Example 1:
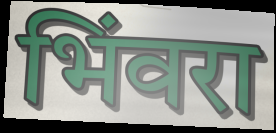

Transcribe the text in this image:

भिंवरा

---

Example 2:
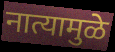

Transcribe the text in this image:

नात्यामुळे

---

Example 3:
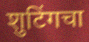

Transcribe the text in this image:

शुटिंगचा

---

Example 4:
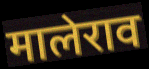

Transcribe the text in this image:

मालेराव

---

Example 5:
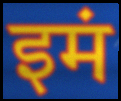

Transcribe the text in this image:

इमं